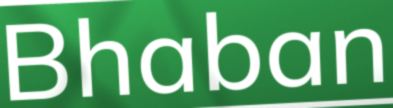
Bhaban